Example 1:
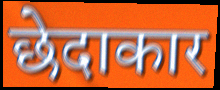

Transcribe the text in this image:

छेदाकार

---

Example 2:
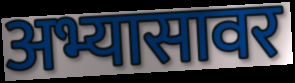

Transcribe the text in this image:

अभ्यासावर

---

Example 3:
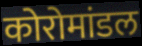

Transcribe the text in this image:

कोरोमांडल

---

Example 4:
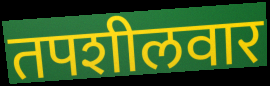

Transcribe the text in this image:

तपशीलवार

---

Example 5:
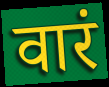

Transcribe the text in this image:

वारं